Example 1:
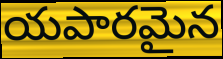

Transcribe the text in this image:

యపారమైన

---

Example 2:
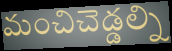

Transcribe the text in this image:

మంచిచెడ్డల్ని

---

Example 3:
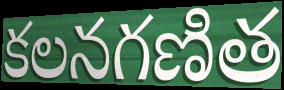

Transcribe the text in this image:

కలనగణిత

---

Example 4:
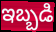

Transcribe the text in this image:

ఇబ్బడి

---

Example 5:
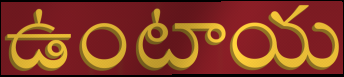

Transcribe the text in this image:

ఉంటాయ